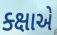
ક્ક્ષાએ